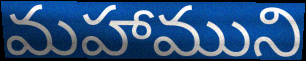
మహాముని